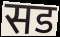
सड